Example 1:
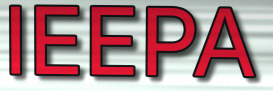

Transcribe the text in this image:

IEEPA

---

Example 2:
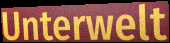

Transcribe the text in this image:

Unterwelt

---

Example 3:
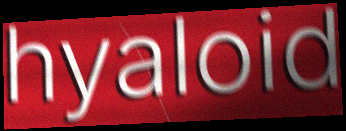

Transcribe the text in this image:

hyaloid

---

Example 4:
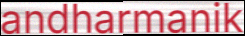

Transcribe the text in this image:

andharmanik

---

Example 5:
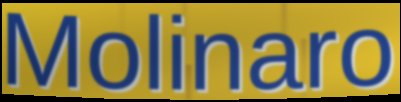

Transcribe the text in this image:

Molinaro